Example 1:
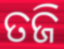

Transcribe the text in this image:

ତଜି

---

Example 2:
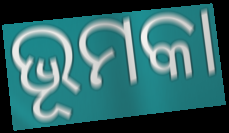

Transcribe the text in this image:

ଭୂମକା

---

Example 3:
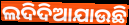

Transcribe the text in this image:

ଲଦିଦିଆଯାଉଛି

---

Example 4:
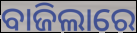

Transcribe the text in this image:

ବାଜିଲାରେ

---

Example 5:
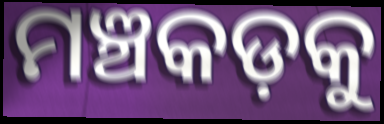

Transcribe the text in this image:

ମଞ୍ଚକଡ଼କୁ